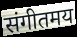
संगीतमय